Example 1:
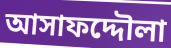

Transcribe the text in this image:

আসাফদ্দৌলা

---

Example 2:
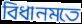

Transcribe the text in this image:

বিধানমতে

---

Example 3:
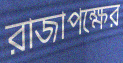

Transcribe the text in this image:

রাজাপক্ষের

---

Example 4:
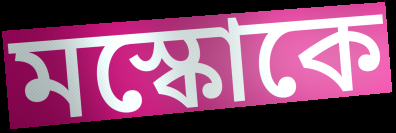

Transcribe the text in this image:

মস্কোকে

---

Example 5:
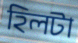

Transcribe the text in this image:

হিলটা